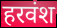
हरवंश